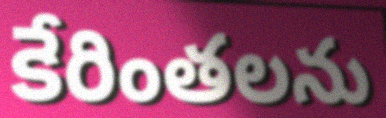
కేరింతలను